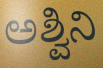
ಅಶ್ವಿನಿ